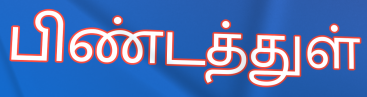
பிண்டத்துள்